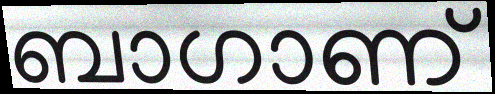
ബാഗാണ്